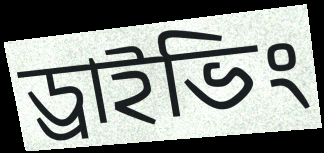
ড্রাইভিং